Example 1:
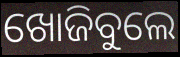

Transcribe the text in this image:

ଖୋଜିବୁଲେ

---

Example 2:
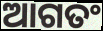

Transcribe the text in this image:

ଆଗତଂ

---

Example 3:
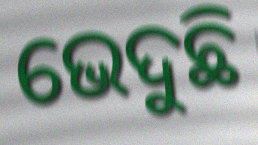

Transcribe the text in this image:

ଭେଦୁଛି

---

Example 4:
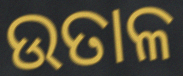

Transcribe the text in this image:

ଉତାଳ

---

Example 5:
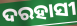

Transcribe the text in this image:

ଦରହାସୀ